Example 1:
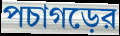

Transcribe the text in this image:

পচাগড়ের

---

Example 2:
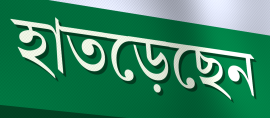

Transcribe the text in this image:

হাতড়েছেন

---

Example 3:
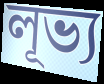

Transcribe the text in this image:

লূভ্য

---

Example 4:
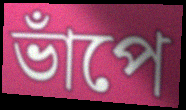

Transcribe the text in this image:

ভাঁপে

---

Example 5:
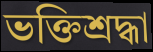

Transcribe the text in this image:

ভক্তিশ্রদ্ধা